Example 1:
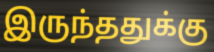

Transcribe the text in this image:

இருந்ததுக்கு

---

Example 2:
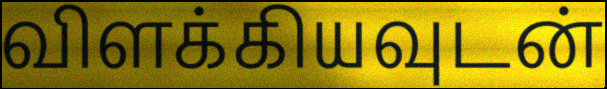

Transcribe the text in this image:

விளக்கியவுடன்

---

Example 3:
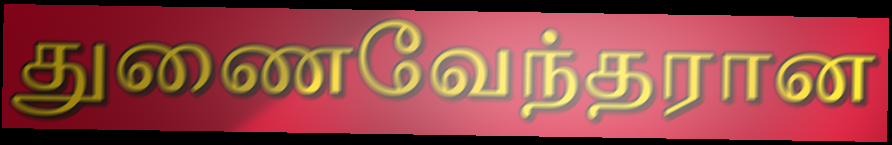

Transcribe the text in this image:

துணைவேந்தரான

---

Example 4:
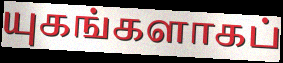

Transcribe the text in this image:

யுகங்களாகப்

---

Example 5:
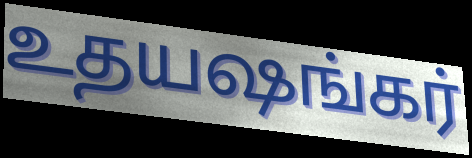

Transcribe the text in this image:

உதயஷங்கர்